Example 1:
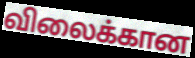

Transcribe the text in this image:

விலைக்கான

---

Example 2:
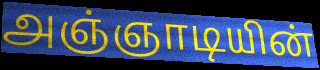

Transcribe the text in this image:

அஞ்ஞாடியின்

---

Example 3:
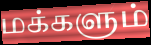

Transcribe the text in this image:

மக்களும்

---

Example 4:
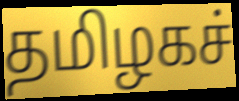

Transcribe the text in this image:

தமிழகச்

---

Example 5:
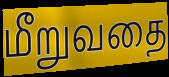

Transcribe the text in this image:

மீறுவதை